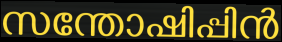
സന്തോഷിപ്പിൻ